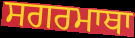
ਸਗਰਮਾਥਾ